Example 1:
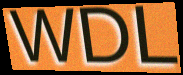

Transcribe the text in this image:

WDL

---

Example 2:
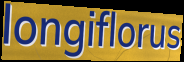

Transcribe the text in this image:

longiflorus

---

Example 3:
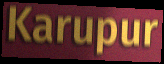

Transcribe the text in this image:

Karupur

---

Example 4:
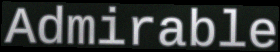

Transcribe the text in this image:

Admirable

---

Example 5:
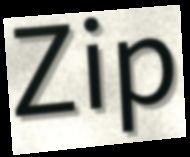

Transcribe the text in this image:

Zip